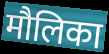
मौलिका